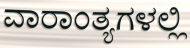
ವಾರಾಂತ್ಯಗಳಲ್ಲಿ